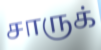
சாருக்